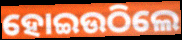
ହୋଇଉଠିଲେ